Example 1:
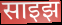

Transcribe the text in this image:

साइझ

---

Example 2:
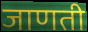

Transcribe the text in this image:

जाणती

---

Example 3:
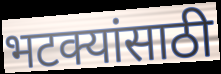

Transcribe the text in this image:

भटक्यांसाठी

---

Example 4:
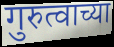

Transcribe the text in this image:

गुरुत्वाच्या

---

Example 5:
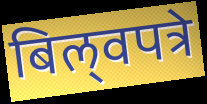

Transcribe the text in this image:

बिल्वपत्रे